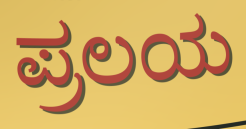
ಪ್ರಲಯ